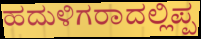
ಹದುಳಿಗರಾದಲ್ಲಿಪ್ಪ